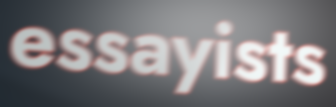
essayists